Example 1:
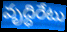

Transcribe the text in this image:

వృద్ధిరేటు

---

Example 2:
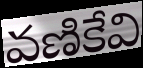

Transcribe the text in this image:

వణికేవి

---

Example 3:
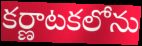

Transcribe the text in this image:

కర్ణాటకలోను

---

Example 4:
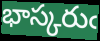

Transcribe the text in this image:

భాస్కరుఁ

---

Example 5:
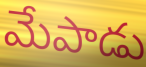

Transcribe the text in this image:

మేపాడు